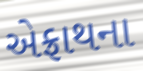
એફ્રાથના